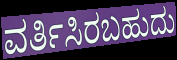
ವರ್ತಿಸಿರಬಹುದು